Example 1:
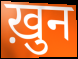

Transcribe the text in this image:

ख़ुन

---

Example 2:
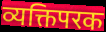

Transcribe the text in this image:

व्यक्तिपरक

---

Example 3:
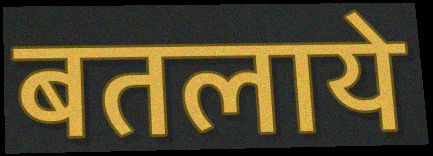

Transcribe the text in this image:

बतलाये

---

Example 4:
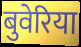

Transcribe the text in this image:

बुवेरिया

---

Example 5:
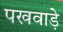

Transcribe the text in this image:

पखवाड़े